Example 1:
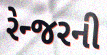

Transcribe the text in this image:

રેન્જરની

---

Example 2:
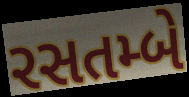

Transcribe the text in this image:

રસતમ્બે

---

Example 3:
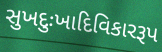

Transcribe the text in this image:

સુખદુઃખાદિવિકારરૂપ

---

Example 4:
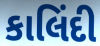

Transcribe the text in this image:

કાલિંદી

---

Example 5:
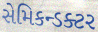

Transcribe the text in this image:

સેમિકન્ડક્ટર